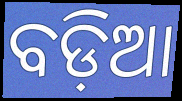
ବଡ଼ିଆ